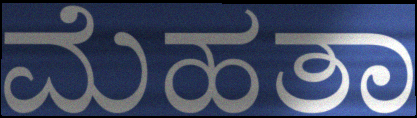
ಮೆಹತಾ